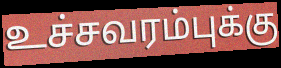
உச்சவரம்புக்கு